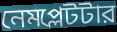
নেমপ্লেটটার